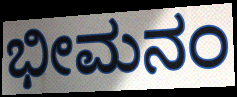
ಭೀಮನಂ